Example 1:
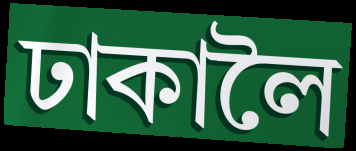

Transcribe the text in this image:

ঢাকালৈ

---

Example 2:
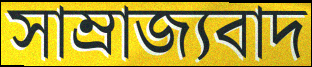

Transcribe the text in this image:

সাম্ৰাজ্যবাদ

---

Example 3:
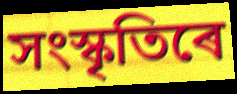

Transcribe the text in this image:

সংস্কৃতিৰে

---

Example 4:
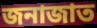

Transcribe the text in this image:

জনাজাত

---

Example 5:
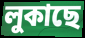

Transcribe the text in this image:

লুকাছে